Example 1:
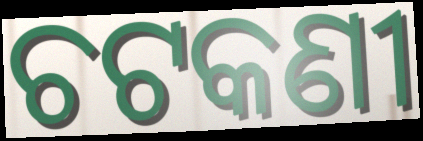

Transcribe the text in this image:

ଚଟକଣୀ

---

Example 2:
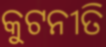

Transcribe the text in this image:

କୁଟନୀତି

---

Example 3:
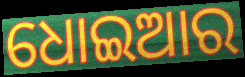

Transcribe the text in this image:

ଧୋଇଆର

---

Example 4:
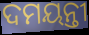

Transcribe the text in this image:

ଦମୟନ୍ତୀ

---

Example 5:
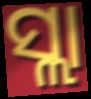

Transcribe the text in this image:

ସ୍ଲା